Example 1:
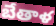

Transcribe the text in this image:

బేతాళ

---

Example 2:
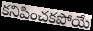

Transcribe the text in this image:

కనిపించకపోయే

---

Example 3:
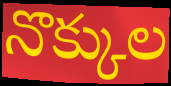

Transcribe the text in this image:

నొక్కుల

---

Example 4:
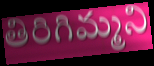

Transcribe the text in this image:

తిరిగిమ్మని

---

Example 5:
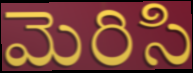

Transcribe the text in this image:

మెరిసి